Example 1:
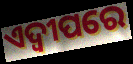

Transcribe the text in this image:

ଏଦ୍ୱୀପରେ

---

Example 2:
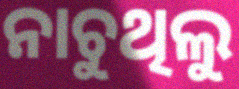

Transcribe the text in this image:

ନାଚୁଥିଲୁ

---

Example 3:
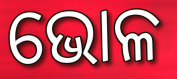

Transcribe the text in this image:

ଭୋଳ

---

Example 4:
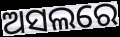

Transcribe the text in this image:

ଅସଲରେ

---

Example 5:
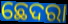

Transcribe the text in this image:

ଛେଦରା